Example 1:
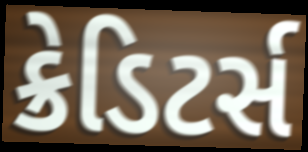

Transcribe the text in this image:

ક્રેડિટર્સ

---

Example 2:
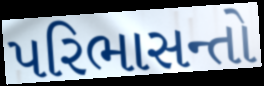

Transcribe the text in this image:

પરિભાસન્તો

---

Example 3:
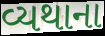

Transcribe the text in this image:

વ્યથાના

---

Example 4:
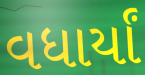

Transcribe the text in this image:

વધાર્યાં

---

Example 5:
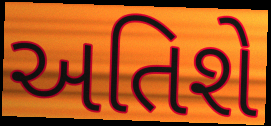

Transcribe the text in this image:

અતિશે